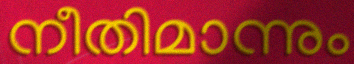
നീതിമാന്നും